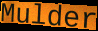
Mulder